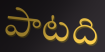
పాటది